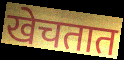
खेचतात